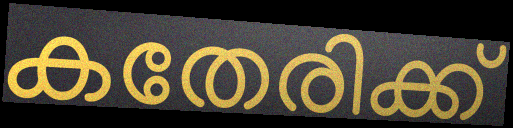
കതേരിക്ക്